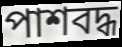
পাশবদ্ধ